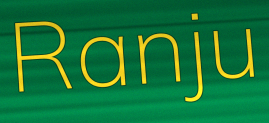
Ranju